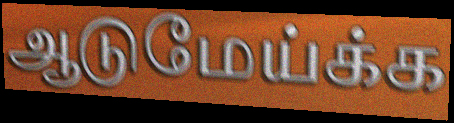
ஆடுமேய்க்க